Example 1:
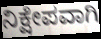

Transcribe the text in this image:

ನಿಕ್ಷೇಪವಾಗಿ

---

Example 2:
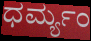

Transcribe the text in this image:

ಧರ್ಮ್ಯಂ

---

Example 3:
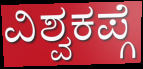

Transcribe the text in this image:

ವಿಶ್ವಕಪ್ಗೆ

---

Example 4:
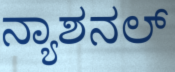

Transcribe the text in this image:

ನ್ಯಾಶನಲ್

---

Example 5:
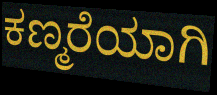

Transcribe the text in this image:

ಕಣ್ಮರೆಯಾಗಿ